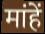
मांहें